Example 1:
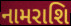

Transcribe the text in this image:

નામરાશિ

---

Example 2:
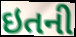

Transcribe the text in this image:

ઇતની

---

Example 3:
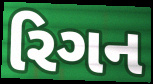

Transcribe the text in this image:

રિગન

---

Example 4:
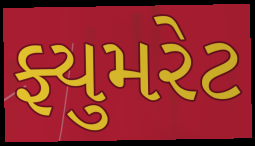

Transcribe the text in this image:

ફ્યુમરેટ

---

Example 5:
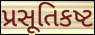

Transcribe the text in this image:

પ્રસૂતિકષ્ટ